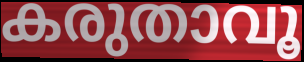
കരുതാവൂ